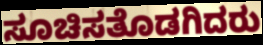
ಸೂಚಿಸತೊಡಗಿದರು